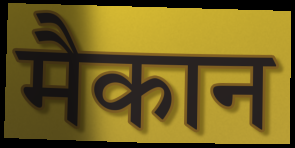
मैकान